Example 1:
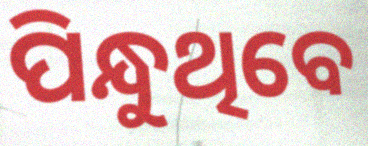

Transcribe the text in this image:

ପିନ୍ଧୁଥିବେ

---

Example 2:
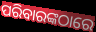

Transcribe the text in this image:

ପରିବାରଙ୍କଠାରେ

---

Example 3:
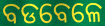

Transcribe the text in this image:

ବଡବେଳେ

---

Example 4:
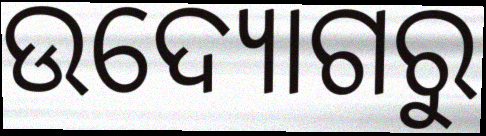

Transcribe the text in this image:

ଉଦ୍ୟୋଗରୁ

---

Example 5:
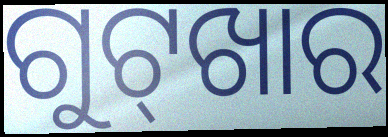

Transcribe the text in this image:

ଗୁଟ୍‌ଖାର